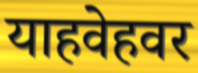
याहवेहवर